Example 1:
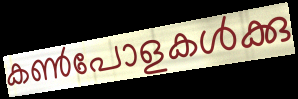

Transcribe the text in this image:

കൺപോളകൾക്കു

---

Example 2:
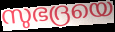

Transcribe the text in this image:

സുഭദ്രയെ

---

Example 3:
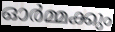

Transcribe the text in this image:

ഓർമ്മക്കും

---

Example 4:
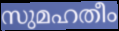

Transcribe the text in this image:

സുമഹതീം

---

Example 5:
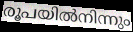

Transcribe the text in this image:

രൂപയിൽനിന്നും